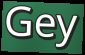
Gey